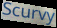
Scurvy